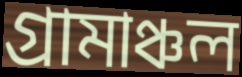
গ্রামাঞ্চল